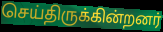
செய்திருக்கின்றனர்